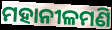
ମହାନୀଳମଣି